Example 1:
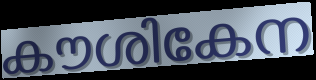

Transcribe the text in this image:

കൗശികേന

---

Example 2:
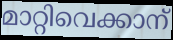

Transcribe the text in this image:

മാറ്റിവെക്കാന്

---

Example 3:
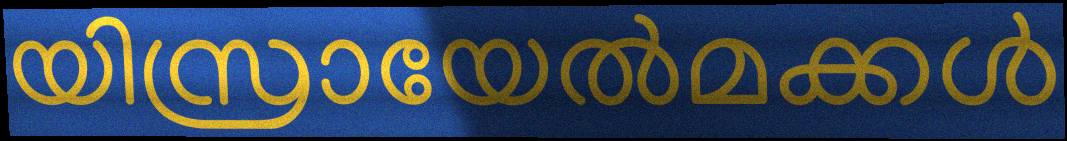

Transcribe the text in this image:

യിസ്രായേൽമക്കൾ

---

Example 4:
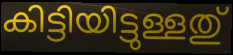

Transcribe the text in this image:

കിട്ടിയിട്ടുള്ളതു്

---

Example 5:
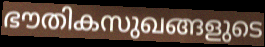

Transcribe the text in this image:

ഭൗതികസുഖങ്ങളുടെ